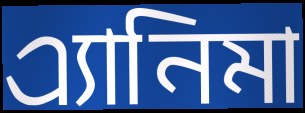
এ্যানিমা